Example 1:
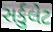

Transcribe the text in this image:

સર્કુલેટ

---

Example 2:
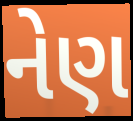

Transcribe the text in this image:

નેણ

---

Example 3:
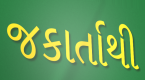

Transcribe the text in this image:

જકાર્તાથી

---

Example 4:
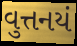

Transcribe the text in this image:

વુત્તનયં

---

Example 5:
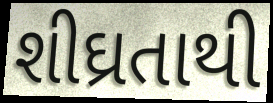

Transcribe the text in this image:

શીઘ્રતાથી